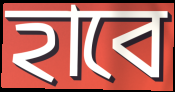
হাবে